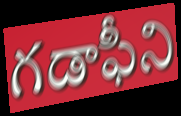
గడాఫీని